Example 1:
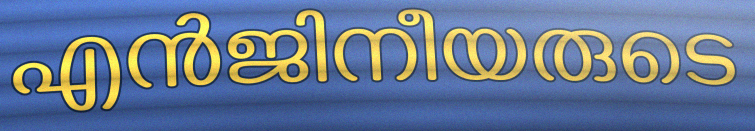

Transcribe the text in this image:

എൻജിനീയരുടെ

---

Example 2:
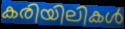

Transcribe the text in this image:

കരിയിലികൾ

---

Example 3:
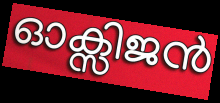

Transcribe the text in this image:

ഓക്സിജൻ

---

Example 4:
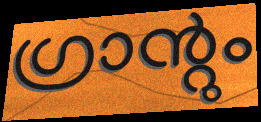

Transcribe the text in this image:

ഗ്രാന്റും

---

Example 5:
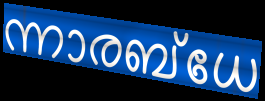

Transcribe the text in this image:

ന്നാരബ്ധേ